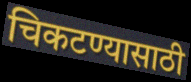
चिकटण्यासाठी